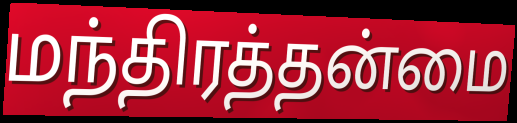
மந்திரத்தன்மை